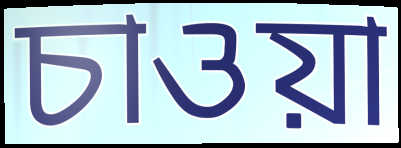
চাওয়া